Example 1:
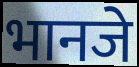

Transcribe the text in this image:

भानजे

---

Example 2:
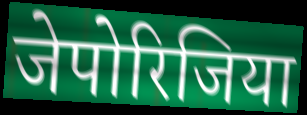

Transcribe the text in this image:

जेपोरिजिया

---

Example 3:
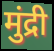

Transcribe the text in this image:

मुंद्री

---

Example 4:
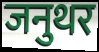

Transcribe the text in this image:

जनुथर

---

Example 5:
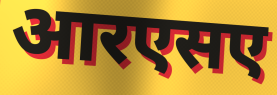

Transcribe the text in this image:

आरएसए